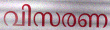
വിസരണ